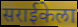
सराईकेला